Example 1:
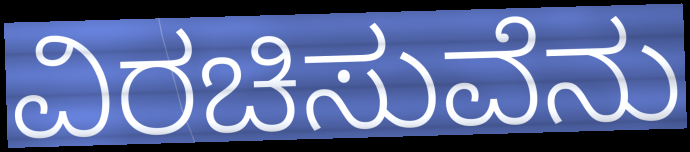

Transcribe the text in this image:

ವಿರಚಿಸುವೆನು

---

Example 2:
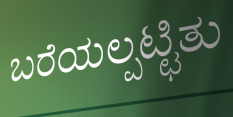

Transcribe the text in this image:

ಬರೆಯಲ್ಪಟ್ಟಿತು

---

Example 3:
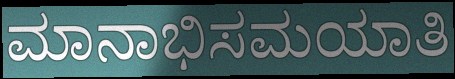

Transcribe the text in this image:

ಮಾನಾಭಿಸಮಯಾತಿ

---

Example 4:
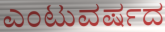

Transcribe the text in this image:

ಎಂಟುವರ್ಷದ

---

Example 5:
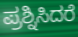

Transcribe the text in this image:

ಪ್ರಶ್ನಿಸಿದರೆ